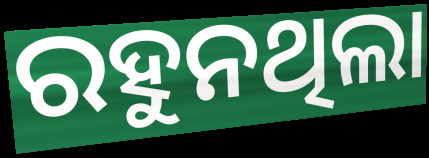
ରହୁନଥିଲା